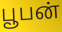
பூபன்